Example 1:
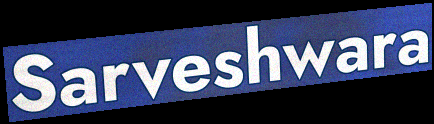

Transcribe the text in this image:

Sarveshwara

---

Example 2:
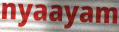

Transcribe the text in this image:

nyaayam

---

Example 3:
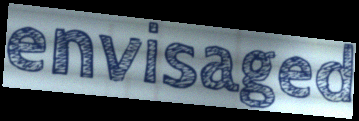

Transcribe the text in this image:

envisaged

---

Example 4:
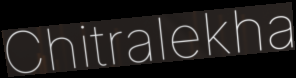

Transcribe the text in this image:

Chitralekha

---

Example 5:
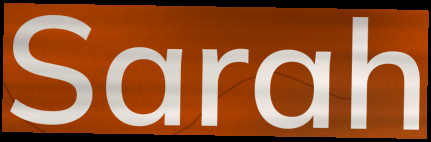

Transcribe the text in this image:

Sarah